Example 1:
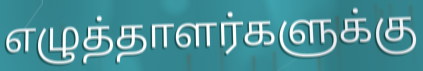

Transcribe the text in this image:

எழுத்தாளர்களுக்கு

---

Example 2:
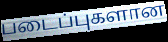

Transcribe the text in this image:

படைப்புகளான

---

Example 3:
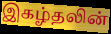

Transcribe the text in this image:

இகழ்தலின்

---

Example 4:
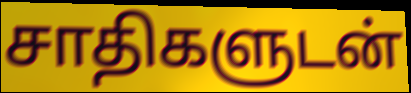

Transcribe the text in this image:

சாதிகளுடன்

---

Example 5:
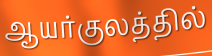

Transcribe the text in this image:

ஆயர்குலத்தில்